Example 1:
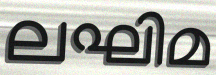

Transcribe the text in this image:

ലഘിമ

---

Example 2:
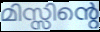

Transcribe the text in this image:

മിസ്സിന്റെ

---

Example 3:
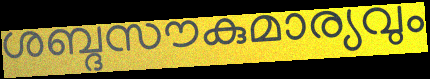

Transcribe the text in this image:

ശബ്ദസൗകുമാര്യവും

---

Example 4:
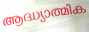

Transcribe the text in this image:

ആദ്ധ്യാത്മിക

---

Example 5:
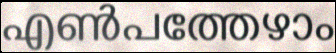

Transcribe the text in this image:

എൺപത്തേഴാം